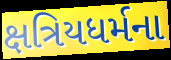
ક્ષત્રિયધર્મના